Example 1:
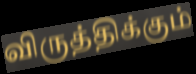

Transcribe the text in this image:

விருத்திக்கும்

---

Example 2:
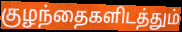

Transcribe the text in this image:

குழந்தைகளிடத்தும்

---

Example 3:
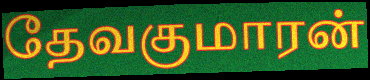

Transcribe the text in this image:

தேவகுமாரன்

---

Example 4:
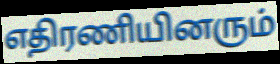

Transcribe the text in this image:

எதிரணியினரும்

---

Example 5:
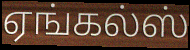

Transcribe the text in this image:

ஏங்கல்ஸ்